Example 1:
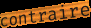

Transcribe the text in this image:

contraire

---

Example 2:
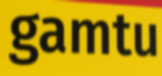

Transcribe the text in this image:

gamtu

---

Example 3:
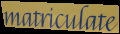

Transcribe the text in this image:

matriculate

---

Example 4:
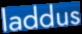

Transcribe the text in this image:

laddus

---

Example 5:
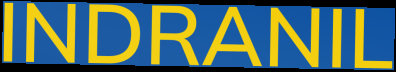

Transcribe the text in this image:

INDRANIL